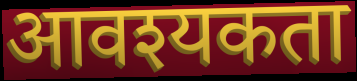
आवश्यकता